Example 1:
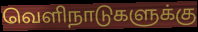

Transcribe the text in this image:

வெளிநாடுகளுக்கு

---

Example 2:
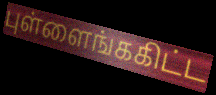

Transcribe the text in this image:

புள்ளைங்ககிட்ட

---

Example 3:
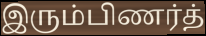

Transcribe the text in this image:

இரும்பிணர்த்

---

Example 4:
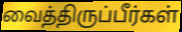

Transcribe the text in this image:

வைத்திருப்பீர்கள்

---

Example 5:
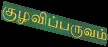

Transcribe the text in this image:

குழவிப்பருவம்